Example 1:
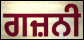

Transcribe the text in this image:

ਗਜ਼ਨੀ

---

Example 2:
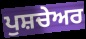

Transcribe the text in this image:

ਪੁਸ਼ਚੇਅਰ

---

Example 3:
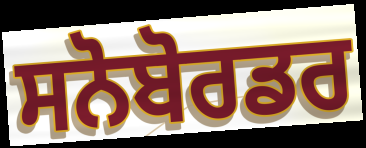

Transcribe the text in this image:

ਸਨੋਬੋਰਡਰ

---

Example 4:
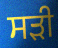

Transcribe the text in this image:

ਸੜੀ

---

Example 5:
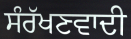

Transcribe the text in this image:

ਸੰਰੱਖਣਵਾਦੀ